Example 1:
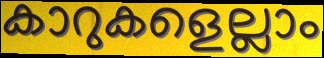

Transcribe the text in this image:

കാറുകളെല്ലാം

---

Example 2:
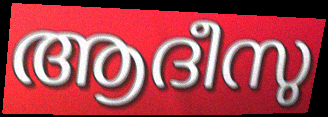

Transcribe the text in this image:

ആദീസു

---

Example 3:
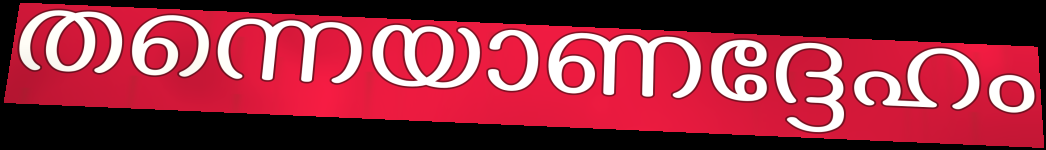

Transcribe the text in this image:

തന്നെയാണദ്ദേഹം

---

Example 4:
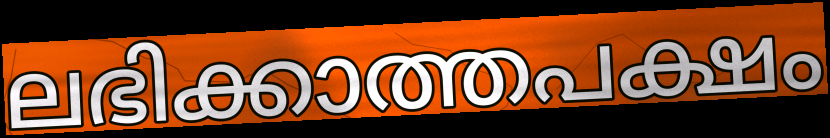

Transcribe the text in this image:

ലഭിക്കാത്തപക്ഷം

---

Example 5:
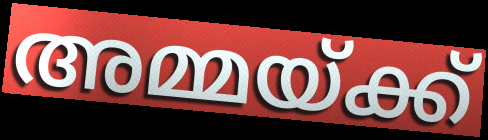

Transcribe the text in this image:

അമ്മയ്ക്ക്